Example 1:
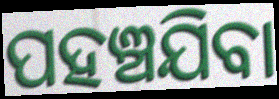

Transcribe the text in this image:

ପହଞ୍ଚଯିବା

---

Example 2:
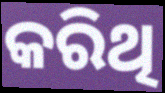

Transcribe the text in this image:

କରିଥି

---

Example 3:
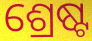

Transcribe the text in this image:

ଶ୍ରେଷ୍ଟ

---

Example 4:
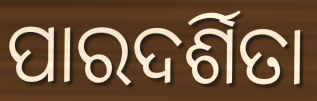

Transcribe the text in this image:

ପାରଦର୍ଶିତା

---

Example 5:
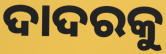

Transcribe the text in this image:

ଦାଦରକୁ